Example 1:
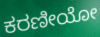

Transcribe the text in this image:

ಕರಣೀಯೋ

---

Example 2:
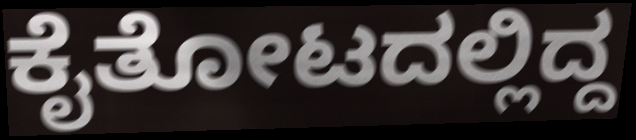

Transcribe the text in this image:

ಕೈತೋಟದಲ್ಲಿದ್ದ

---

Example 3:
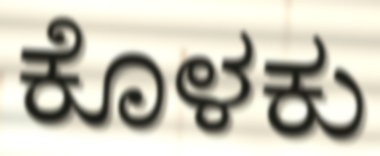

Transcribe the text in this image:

ಕೊಳಕು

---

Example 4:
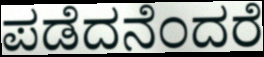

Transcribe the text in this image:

ಪಡೆದನೆಂದರೆ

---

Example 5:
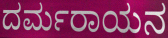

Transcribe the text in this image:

ದರ್ಮರಾಯನ